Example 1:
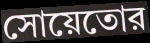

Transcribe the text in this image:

সোয়েতোর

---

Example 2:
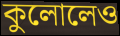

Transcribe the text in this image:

কুলোলেও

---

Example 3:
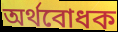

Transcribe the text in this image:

অর্থবোধক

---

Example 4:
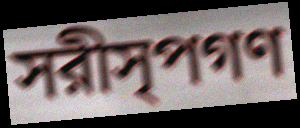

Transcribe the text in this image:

সরীসৃপগণ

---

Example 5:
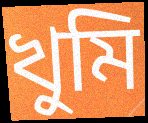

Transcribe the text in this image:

খুমি